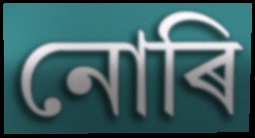
নোৰি